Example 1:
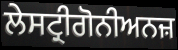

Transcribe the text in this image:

ਲੇਸਟ੍ਰੀਗੋਨੀਅਨਜ਼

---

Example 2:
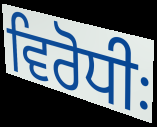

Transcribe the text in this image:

ਵਿਰੋਧੀਃ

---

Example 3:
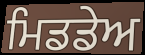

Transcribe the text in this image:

ਮਿਡਡੇਅ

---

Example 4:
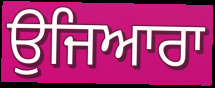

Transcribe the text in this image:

ਉਜਿਆਰਾ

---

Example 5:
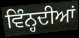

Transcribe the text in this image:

ਵਿੰਨ੍ਹਦੀਆਂ